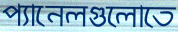
প্যানেলগুলোতে